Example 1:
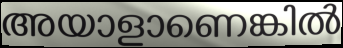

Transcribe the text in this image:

അയാളാണെങ്കിൽ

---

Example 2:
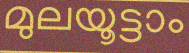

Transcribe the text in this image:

മുലയൂട്ടാം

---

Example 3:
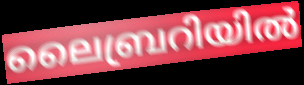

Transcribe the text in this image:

ലൈബ്രറിയിൽ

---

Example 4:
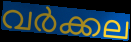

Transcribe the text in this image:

വർക്കല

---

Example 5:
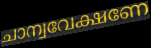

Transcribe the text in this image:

ചാന്വവേക്ഷണേ